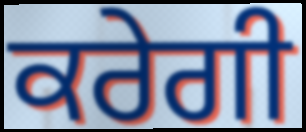
ਕਰੇਗੀ